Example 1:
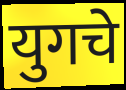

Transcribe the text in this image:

युगचे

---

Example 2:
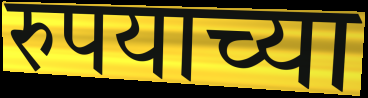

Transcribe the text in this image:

रुपयाच्या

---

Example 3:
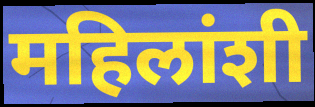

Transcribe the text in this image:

महिलांशी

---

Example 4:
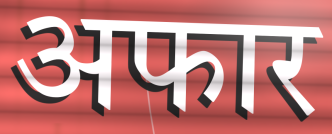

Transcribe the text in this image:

अफार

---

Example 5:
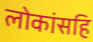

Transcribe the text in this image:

लोकांसहि